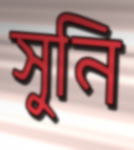
সুনি